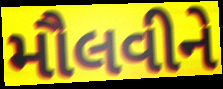
મૌલવીને